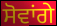
ਸੋਵਾਂਗੇ